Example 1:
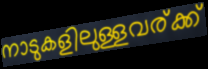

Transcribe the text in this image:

നാടുകളിലുള്ളവര്ക്ക്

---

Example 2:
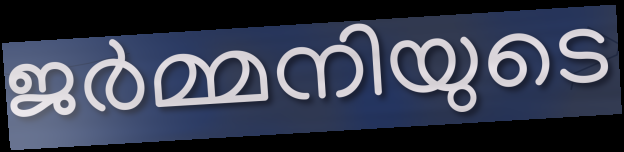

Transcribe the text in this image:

ജർമ്മനിയുടെ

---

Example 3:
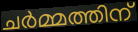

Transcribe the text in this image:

ചർമ്മത്തിന്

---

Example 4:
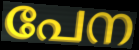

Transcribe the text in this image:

പേന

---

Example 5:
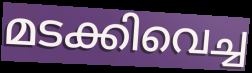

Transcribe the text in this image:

മടക്കിവെച്ച